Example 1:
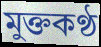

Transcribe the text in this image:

মুক্তকণ্ঠ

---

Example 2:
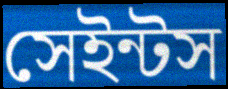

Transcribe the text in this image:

সেইন্টস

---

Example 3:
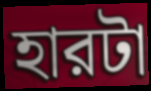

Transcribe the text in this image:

হারটা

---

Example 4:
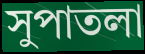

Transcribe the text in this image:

সুপাতলা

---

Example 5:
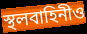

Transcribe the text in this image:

স্থলবাহিনীও